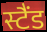
स्‍टैंड